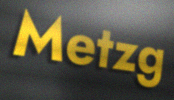
Metzg